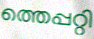
ത്തെപ്പറ്റി